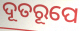
ଦୂତରୂପେ